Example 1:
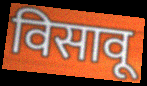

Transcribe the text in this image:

विसावू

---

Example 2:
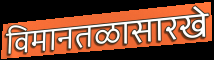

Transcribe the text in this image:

विमानतळासारखे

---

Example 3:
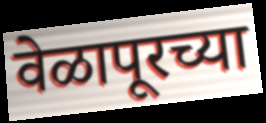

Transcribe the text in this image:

वेळापूरच्या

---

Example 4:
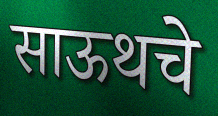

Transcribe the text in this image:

साऊथचे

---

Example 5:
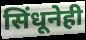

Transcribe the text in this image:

सिंधूनेही